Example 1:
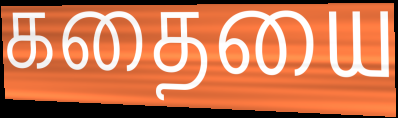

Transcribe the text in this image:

கதையை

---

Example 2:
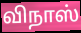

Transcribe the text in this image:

விநாஸ்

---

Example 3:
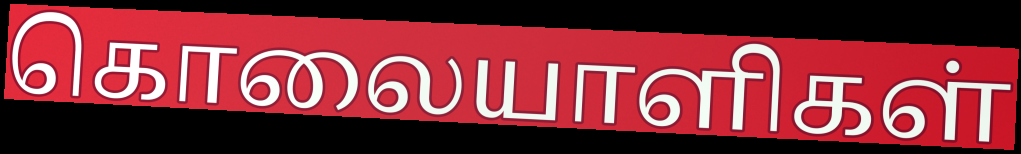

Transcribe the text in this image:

கொலையாளிகள்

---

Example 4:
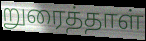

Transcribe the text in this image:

றுரைத்தாள்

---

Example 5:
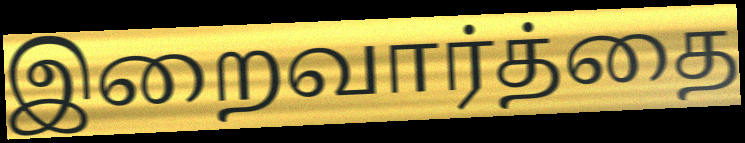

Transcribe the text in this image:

இறைவார்த்தை